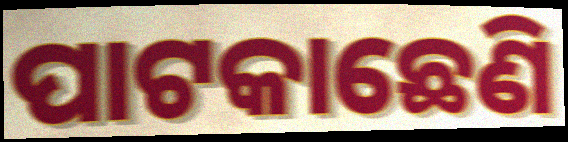
ପାଟକାଛେଣି